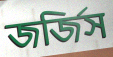
জর্জিস